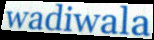
wadiwala